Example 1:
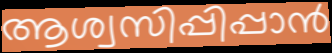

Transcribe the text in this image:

ആശ്വസിപ്പിപ്പാൻ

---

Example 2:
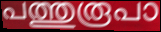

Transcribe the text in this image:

പത്തുരൂപാ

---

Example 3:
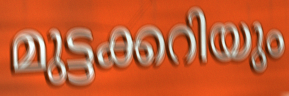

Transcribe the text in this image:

മുട്ടക്കറിയും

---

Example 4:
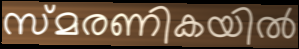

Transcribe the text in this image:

സ്മരണികയിൽ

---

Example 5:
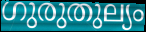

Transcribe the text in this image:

ഗുരുതുല്യം